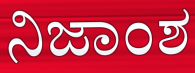
ನಿಜಾಂಶ